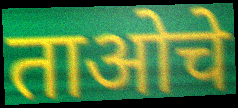
ताओचे